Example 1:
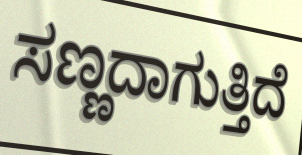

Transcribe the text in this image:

ಸಣ್ಣದಾಗುತ್ತಿದೆ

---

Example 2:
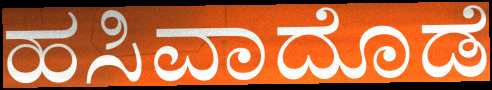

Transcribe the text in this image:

ಹಸಿವಾದೊಡೆ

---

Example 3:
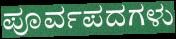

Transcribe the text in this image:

ಪೂರ್ವಪದಗಳು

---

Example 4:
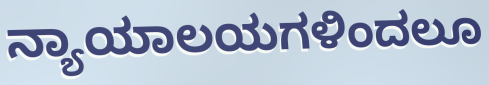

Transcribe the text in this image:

ನ್ಯಾಯಾಲಯಗಳಿಂದಲೂ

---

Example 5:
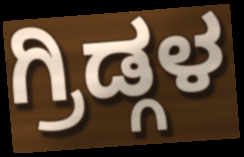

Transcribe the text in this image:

ಗ್ರಿಡ್ಗಳ